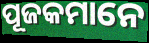
ପୂଜକମାନେ